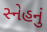
સ્નેહનું